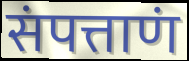
संपत्ताणं